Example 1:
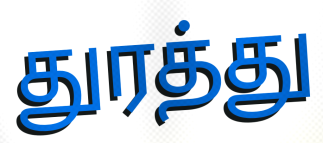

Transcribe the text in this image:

துரத்து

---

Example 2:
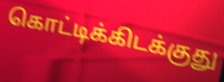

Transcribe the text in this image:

கொட்டிக்கிடக்குது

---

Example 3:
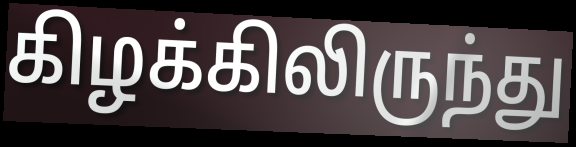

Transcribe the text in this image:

கிழக்கிலிருந்து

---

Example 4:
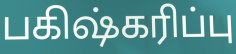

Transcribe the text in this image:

பகிஷ்கரிப்பு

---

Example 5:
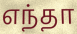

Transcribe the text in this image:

எந்தா